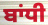
ਬਾਂਧੀ